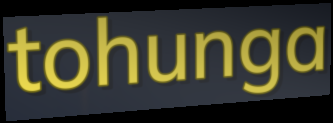
tohunga